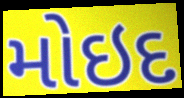
મોઇદ